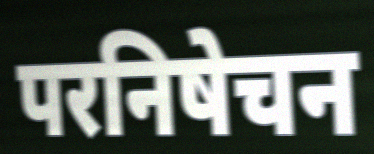
परनिषेचन